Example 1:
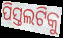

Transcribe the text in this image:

ପିସ୍ତଲଟିକୁ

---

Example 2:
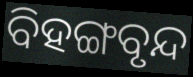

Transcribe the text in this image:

ବିହଙ୍ଗବୃନ୍ଦ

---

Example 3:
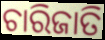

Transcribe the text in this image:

ଚାରିଜାତି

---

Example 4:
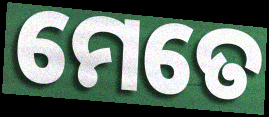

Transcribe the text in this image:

ମେତେ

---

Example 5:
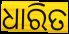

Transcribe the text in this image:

ଧାରିତ